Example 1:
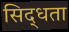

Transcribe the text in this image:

सिद्‌धता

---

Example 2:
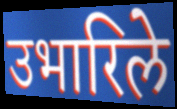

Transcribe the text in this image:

उभारिले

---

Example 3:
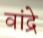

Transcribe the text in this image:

वांद्रे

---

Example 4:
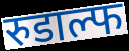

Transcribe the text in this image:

रुडाल्फ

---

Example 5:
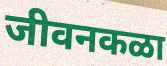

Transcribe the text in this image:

जीवनकळा